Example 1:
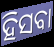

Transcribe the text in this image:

ହିସବା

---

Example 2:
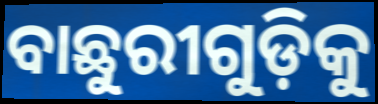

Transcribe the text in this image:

ବାଛୁରୀଗୁଡ଼ିକୁ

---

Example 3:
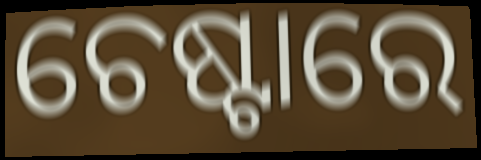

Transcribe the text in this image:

ଚେଷ୍ଟାରେ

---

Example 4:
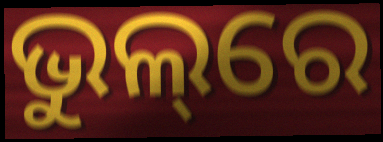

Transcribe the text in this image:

ଭୁଲ୍‌ରେ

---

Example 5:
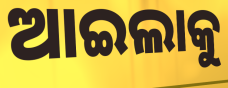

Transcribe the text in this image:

ଆଇଲାକୁ